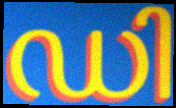
ഡി